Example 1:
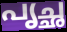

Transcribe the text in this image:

പൃച്ഛ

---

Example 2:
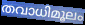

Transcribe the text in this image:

തവാധിമൂലം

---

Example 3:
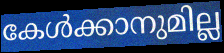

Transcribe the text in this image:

കേൾക്കാനുമില്ല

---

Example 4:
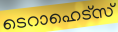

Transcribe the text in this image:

ടെറാഹെട്സ്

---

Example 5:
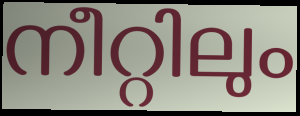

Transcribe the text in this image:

നീറ്റിലും